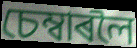
চেম্বাৰলৈ